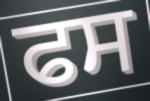
ਫਸ